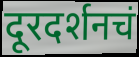
दूरदर्शनचं